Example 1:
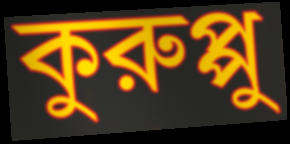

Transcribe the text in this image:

কুরুপ্পু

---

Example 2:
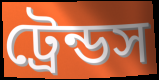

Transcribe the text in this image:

ট্রেন্ডস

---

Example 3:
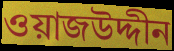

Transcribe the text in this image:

ওয়াজউদ্দীন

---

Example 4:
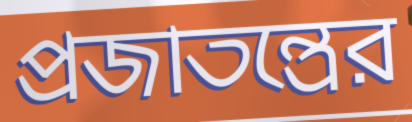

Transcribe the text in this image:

প্রজাতন্ত্রের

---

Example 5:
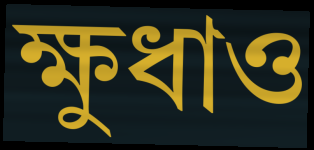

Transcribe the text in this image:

ক্ষুধাও